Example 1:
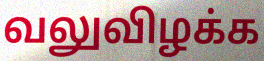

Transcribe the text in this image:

வலுவிழக்க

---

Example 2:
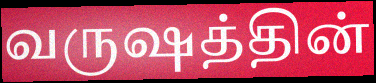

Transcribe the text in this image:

வருஷத்தின்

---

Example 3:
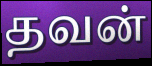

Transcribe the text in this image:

தவன்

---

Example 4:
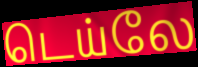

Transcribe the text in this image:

டெய்லே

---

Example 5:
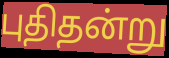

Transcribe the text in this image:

புதிதன்று